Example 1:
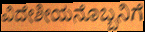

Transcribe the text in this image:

ವಿದೇಶೀಯನೊಬ್ಬನಿಗೆ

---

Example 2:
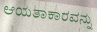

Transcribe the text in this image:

ಆಯತಾಕಾರವನ್ನು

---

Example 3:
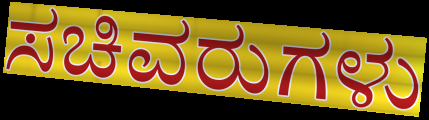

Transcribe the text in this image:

ಸಚಿವರುಗಳು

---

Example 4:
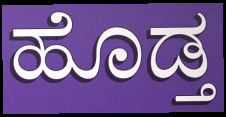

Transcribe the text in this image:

ಹೊಡ್ತ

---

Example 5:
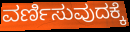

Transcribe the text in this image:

ವರ್ಣಿಸುವುದಕ್ಕೆ